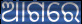
ଆଗରେ